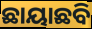
ଛାୟାଛବି